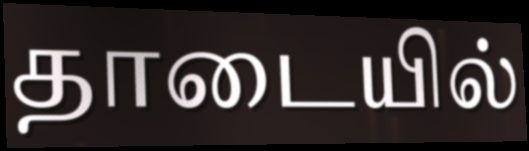
தாடையில்